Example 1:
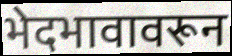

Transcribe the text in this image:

भेदभावावरून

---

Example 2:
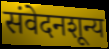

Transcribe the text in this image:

संवेदनशून्य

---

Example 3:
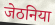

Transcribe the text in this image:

जेठनिया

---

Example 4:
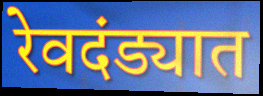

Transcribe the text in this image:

रेवदंड्यात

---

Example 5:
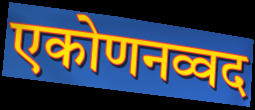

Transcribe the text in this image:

एकोणनव्वद